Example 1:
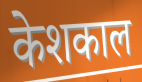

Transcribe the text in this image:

केशकाल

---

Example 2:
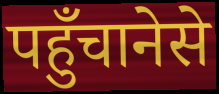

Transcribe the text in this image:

पहुँचानेसे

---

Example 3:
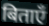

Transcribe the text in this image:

बिताएँ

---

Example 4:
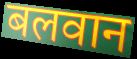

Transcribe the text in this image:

बलवान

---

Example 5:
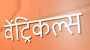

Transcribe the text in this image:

वेंट्रिकल्स